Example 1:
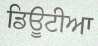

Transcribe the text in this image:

ਡਿਊਟੀਆ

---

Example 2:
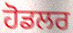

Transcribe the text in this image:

ਹੋਡਲਰ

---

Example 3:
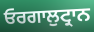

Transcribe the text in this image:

ਓਰਗਾਲੁਟ੍ਰਾਨ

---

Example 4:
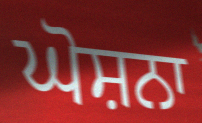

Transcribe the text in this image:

ਘੋਸ਼ਨਾ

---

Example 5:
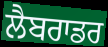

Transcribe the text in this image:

ਲੈਬਰਾਡਰ